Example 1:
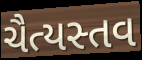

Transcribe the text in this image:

ચૈત્યસ્તવ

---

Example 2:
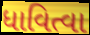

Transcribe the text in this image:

ધાવિત્વા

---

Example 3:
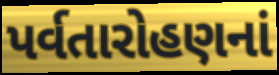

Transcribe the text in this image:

પર્વતારોહણનાં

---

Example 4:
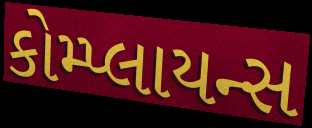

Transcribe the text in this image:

કોમ્પ્લાયન્સ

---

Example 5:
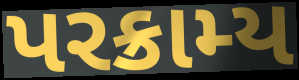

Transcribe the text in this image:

પરક્રામ્ય